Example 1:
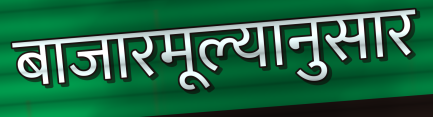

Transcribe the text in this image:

बाजारमूल्यानुसार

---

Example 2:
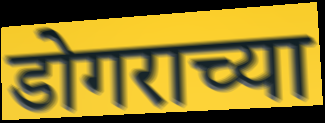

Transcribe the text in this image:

डोगराच्या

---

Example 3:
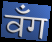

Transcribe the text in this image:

वँग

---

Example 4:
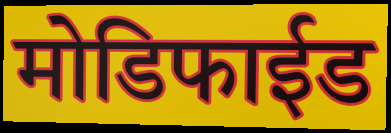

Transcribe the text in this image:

मोडिफाईड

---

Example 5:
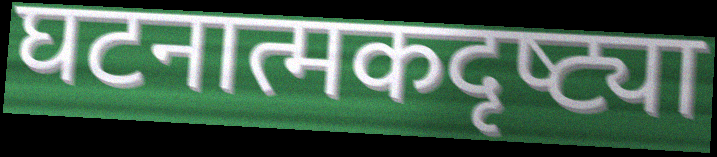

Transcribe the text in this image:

घटनात्मकदृष्ट्या